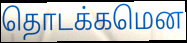
தொடக்கமென